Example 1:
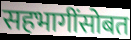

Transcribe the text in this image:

सहभागींसोबत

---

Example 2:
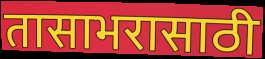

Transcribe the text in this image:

तासाभरासाठी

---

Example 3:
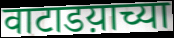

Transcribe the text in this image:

वाटाडय़ाच्या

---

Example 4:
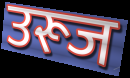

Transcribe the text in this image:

उरूज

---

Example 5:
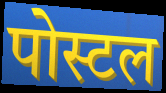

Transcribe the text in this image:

पोस्टल